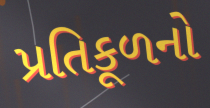
પ્રતિકૂળનો